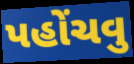
પહોંચવુ